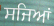
ਸਜਿਆਂ